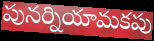
పునర్నియామకపు